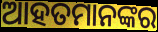
ଆହତମାନଙ୍କର